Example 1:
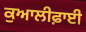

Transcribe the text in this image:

ਕੁਆਲੀਫ਼ਾਈ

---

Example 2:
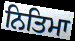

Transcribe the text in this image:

ਨਿਤਿਮਾ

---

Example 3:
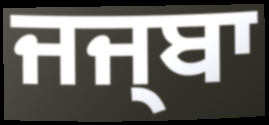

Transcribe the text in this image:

ਜਜ੍ਬਾ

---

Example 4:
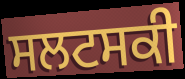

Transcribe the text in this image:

ਸਲਟਸਕੀ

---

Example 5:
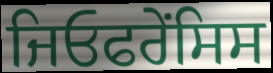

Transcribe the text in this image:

ਜਿਓਫਰੇਂਸਿਸ